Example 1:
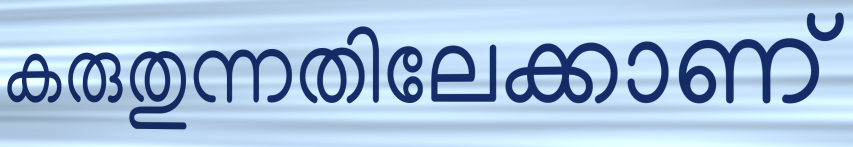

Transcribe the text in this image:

കരുതുന്നതിലേക്കാണ്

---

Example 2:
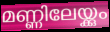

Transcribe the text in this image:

മണ്ണിലേയ്ക്കും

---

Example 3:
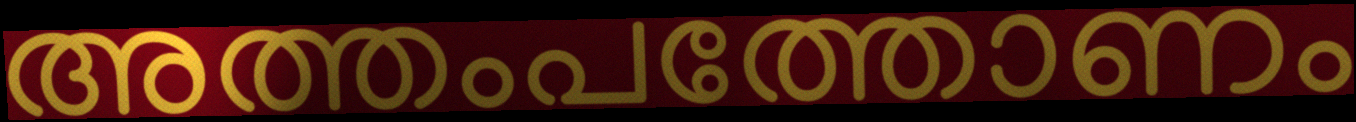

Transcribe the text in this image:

അത്തംപത്തോണം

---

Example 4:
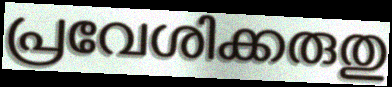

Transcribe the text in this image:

പ്രവേശിക്കരുതു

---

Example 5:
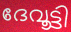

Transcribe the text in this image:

ദേവൂട്ടി